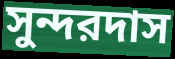
সুন্দরদাস